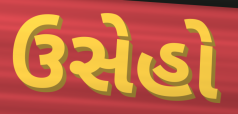
ઉસેહો